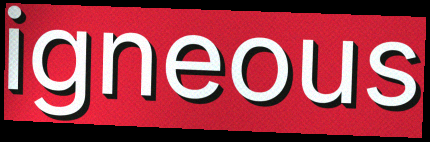
igneous